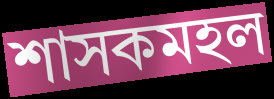
শাসকমহল